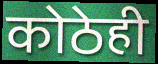
कोठेही